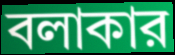
বলাকার